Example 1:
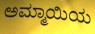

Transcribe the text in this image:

ಅಮ್ಮಾಯಿಯ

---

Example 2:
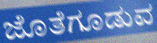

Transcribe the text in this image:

ಜೊತೆಗೂಡುವ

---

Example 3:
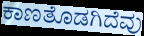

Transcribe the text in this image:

ಕಾಣತೊಡಗಿದೆವು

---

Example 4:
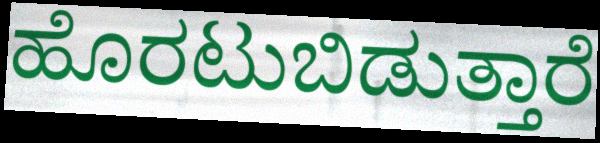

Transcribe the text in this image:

ಹೊರಟುಬಿಡುತ್ತಾರೆ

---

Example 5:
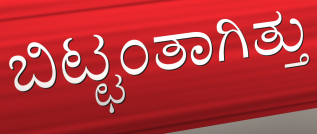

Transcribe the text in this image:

ಬಿಟ್ಟಂತಾಗಿತ್ತು